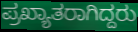
ಪ್ರಖ್ಯಾತರಾಗಿದ್ದರು